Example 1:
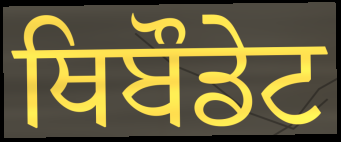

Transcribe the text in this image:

ਥਿਬੌਡੇਟ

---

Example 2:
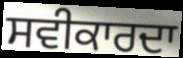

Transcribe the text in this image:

ਸਵੀਕਾਰਦਾ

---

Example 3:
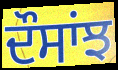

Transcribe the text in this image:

ਦੌਸਾਂਝ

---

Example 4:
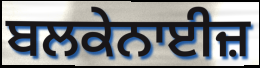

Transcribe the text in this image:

ਬਲਕੇਨਾਈਜ਼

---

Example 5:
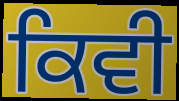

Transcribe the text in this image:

ਕਿਵੀ